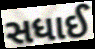
સધાઈ